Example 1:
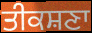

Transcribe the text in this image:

ਤੀਕਸ਼ਣਾ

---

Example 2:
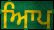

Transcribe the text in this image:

ਆਿਪ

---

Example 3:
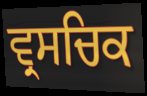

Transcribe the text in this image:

ਵ੍ਰਸਚਿਕ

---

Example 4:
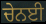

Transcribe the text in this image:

ਚੇਨਈ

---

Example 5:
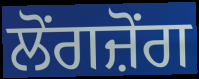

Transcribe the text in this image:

ਲੋਂਗਜ਼ੋਂਗ